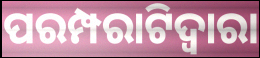
ପରମ୍ପରାଟିଦ୍ୱାରା